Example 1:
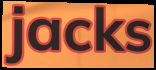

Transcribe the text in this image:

jacks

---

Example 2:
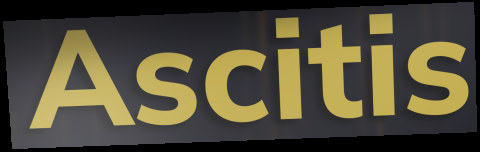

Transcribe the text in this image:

Ascitis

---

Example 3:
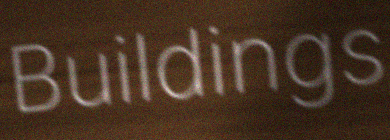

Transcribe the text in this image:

Buildings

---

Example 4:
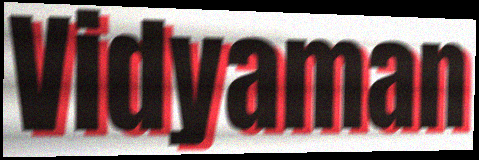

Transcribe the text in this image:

Vidyaman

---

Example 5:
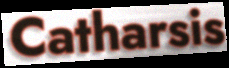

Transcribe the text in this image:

Catharsis